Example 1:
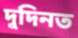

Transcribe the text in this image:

দুদিনত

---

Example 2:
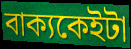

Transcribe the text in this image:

বাক্যকেইটা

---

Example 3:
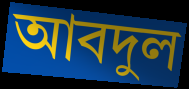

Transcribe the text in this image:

আবদুল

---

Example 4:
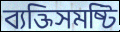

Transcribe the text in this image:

ব্যক্তিসমষ্টি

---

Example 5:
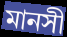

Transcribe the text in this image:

মানসী